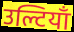
उल्टियाँ